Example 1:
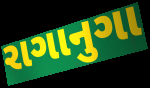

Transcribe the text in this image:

રાગાનુગા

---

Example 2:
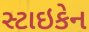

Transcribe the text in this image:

સ્ટાઇકેન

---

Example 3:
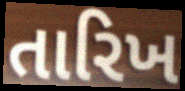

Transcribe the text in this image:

તારિખ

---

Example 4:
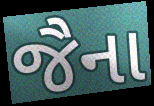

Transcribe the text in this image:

જૈના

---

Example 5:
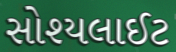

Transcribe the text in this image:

સોશ્યલાઈટ